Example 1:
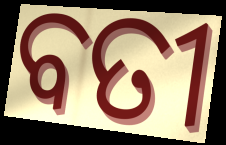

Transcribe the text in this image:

ବତୀ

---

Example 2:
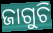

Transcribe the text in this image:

ଜାଗୁଚି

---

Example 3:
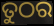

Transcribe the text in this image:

ତୁଠର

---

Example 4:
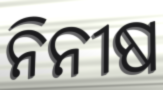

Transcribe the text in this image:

ନିନୀଷ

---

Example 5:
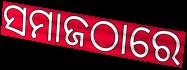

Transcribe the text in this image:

ସମାଜଠାରେ